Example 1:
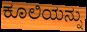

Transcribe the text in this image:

ಕೂಲಿಯನ್ನು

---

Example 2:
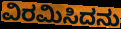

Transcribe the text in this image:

ವಿರಮಿಸಿದನು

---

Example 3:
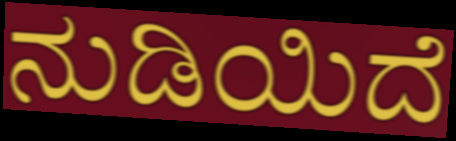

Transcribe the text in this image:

ನುಡಿಯಿದೆ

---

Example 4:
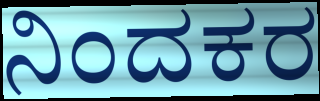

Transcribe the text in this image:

ನಿಂದಕರ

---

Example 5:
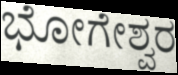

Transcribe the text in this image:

ಭೋಗೇಶ್ವರ